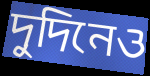
দুদিনেও